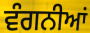
ਵੰਗਨੀਆਂ